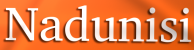
Nadunisi